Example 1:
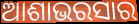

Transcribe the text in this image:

ଆଶାଭରସାର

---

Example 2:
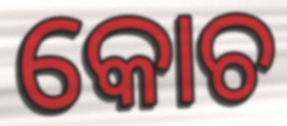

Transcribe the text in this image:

କୋଚ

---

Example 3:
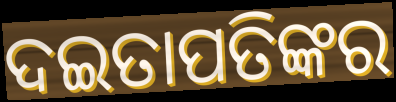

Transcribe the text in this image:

ଦଇତାପତିଙ୍କର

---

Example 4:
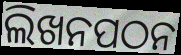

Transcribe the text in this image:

ଲିଖନପଠନ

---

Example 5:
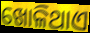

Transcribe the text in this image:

ଖୋଳିଥାଏ